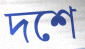
দশে